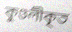
কুণ্ডলীকৃত